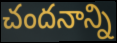
చందనాన్ని